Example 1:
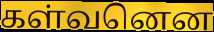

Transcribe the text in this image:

கள்வனென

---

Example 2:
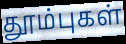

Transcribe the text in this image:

தூம்புகள்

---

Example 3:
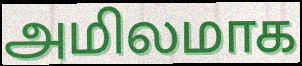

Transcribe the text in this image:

அமிலமாக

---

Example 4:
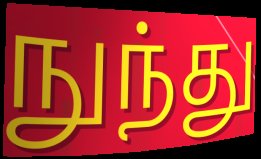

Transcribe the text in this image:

நுந்து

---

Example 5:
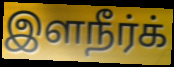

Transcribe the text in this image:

இளநீர்க்